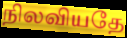
நிலவியதே